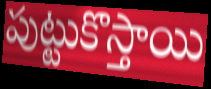
పుట్టుకొస్తాయి